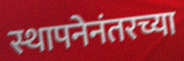
स्थापनेनंतरच्या